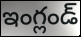
ఇంగ్లండ్